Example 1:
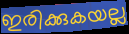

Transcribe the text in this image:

ഇരിക്കുകയല്ല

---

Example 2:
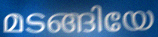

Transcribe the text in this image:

മടങ്ങിയേ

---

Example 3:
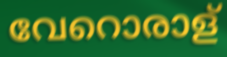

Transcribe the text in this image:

വേറൊരാള്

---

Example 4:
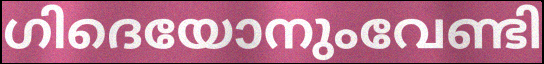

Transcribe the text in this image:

ഗിദെയോനുംവേണ്ടി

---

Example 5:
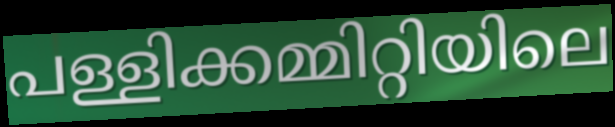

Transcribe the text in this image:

പള്ളിക്കമ്മിറ്റിയിലെ